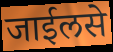
जाईलसे